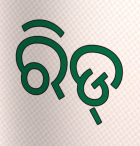
ରିଡ୍